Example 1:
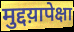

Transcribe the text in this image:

मुद्दय़ापेक्षा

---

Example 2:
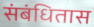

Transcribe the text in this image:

संबंधितास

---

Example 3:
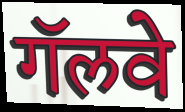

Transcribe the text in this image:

गॅलवे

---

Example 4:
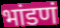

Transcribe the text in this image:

भांडणं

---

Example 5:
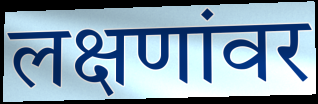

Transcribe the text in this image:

लक्षणांवर